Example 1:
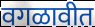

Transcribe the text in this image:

वगळावीत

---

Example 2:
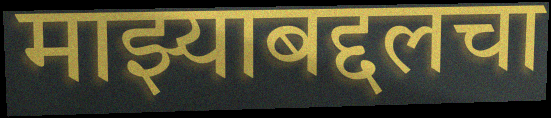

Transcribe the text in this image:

माझ्याबद्दलचा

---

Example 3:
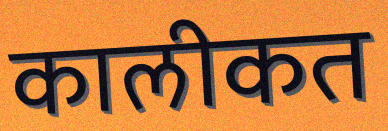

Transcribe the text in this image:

कालीकत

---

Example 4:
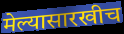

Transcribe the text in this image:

मेल्यासारखीच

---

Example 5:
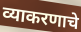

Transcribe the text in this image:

व्याकरणाचे